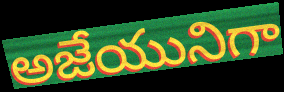
అజేయునిగా